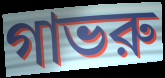
গাভরু